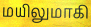
மயிலுமாகி